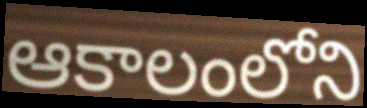
ఆకాలంలోని